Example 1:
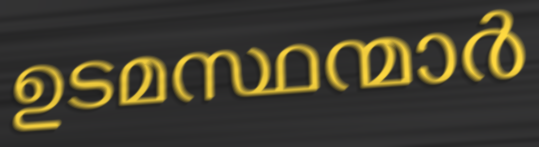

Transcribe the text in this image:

ഉടമസ്ഥന്മാർ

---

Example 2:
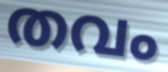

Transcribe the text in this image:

തവം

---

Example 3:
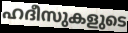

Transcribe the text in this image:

ഹദീസുകളുടെ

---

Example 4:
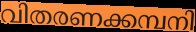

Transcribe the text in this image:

വിതരണക്കമ്പനി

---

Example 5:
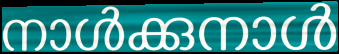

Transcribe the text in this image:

നാൾക്കുനാൾ